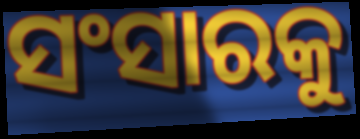
ସଂସାରକୁ